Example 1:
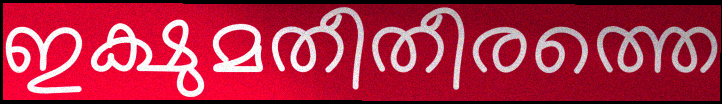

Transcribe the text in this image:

ഇക്ഷുമതീതീരത്തെ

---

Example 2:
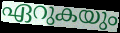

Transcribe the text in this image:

ഏറുകയും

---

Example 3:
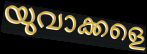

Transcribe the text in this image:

യുവാക്കളെ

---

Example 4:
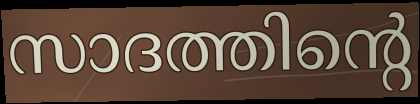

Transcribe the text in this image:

സാദത്തിന്റെ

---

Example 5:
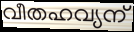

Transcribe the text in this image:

വീതഹവ്യന്